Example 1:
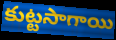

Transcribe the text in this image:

కుట్టసాగాయి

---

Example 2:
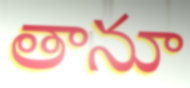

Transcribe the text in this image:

తానూ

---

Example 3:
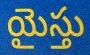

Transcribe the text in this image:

యైస్తు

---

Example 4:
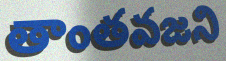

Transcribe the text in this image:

తాంతవజని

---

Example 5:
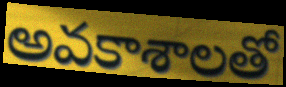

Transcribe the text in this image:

అవకాశాలతో